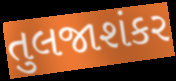
તુલજાશંકર